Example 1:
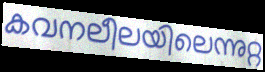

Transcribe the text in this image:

കവനലീലയിലെന്നുറ്റ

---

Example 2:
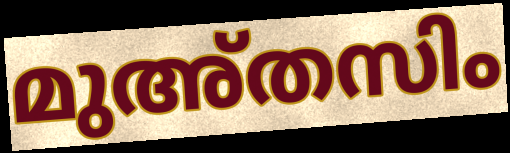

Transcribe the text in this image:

മുഅ്തസിം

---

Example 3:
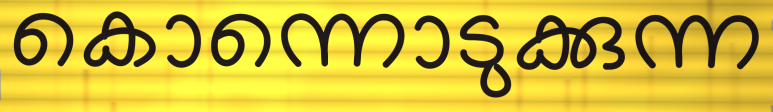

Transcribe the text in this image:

കൊന്നൊടുക്കുന്ന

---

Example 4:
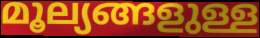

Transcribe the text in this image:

മൂല്യങ്ങളുള്ള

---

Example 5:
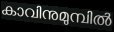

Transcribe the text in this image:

കാവിനുമുമ്പിൽ